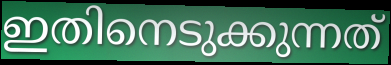
ഇതിനെടുക്കുന്നത്